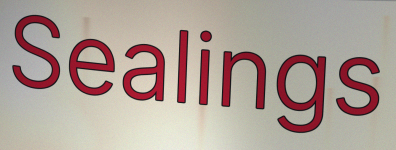
Sealings